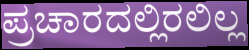
ಪ್ರಚಾರದಲ್ಲಿರಲಿಲ್ಲ